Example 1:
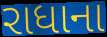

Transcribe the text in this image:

રાધાના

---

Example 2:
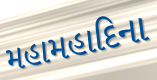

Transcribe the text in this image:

મહામહાદિના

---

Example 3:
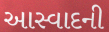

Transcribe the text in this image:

આસ્વાદની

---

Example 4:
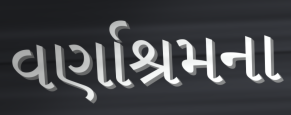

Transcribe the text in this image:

વર્ણાશ્રમના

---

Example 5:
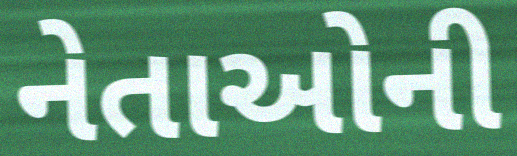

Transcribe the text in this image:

નેતાઓની